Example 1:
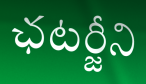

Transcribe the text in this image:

ఛటర్జీని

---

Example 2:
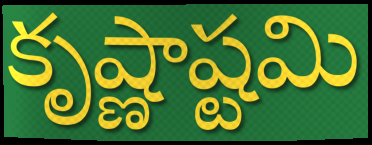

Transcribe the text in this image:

కృష్ణాష్టమి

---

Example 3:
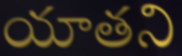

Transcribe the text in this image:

యాతని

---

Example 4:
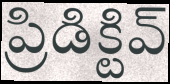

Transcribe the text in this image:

ప్రిడిక్టివ్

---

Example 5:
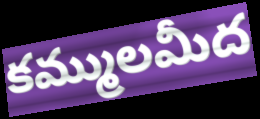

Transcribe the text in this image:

కమ్ములమీద